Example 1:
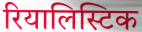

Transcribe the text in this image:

रियालिस्टिक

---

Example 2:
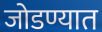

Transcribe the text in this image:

जोडण्यात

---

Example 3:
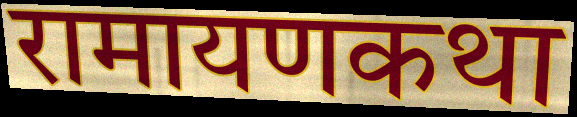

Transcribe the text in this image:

रामायणकथा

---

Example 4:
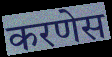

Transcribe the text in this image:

करणेस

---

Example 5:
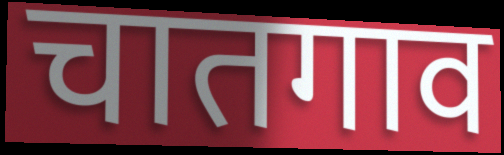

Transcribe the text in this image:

चातगाव